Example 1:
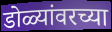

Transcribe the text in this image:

डोळ्यांवरच्या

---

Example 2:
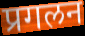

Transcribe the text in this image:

प्रगलन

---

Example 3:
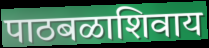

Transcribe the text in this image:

पाठबळाशिवाय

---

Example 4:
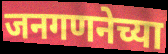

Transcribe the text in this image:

जनगणनेच्या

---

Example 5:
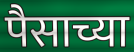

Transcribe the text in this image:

पैसाच्या